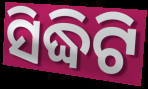
ସିଦ୍ଧିଟି